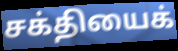
சக்தியைக்